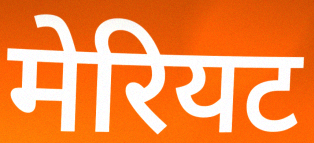
मेरियट